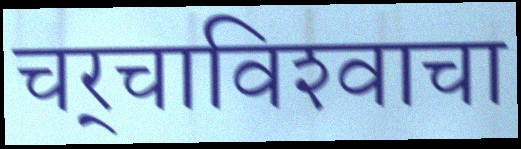
चर्चाविश्वाचा